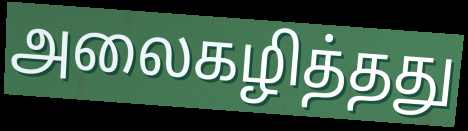
அலைகழித்தது